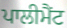
ਪਾਲੀਮੈਂਟ